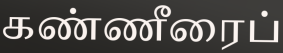
கண்ணீரைப்